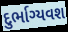
દુર્ભાગ્યવશ